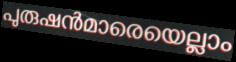
പുരുഷൻമാരെയെല്ലാം